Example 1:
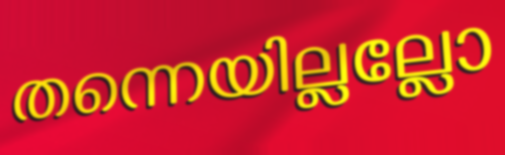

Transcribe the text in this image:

തന്നെയില്ലല്ലോ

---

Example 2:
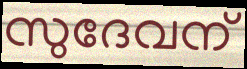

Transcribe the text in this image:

സുദേവന്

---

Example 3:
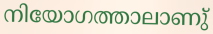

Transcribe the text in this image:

നിയോഗത്താലാണു്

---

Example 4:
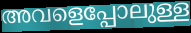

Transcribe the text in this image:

അവളെപ്പോലുള്ള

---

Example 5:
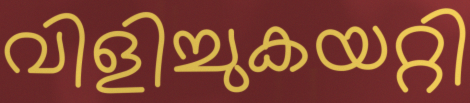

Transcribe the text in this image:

വിളിച്ചുകയറ്റി